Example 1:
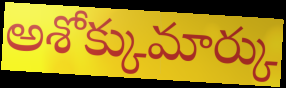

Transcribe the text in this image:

అశోక్కుమార్కు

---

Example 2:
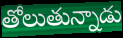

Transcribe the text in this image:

తోలుతున్నాడు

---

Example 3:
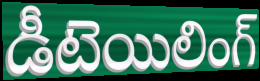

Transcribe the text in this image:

డీటెయిలింగ్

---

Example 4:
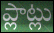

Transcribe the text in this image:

ప్లాట్లు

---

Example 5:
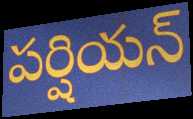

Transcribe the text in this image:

పర్షియన్